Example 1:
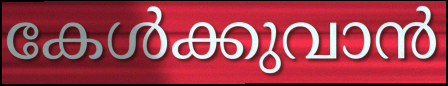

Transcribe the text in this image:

കേൾക്കുവാൻ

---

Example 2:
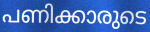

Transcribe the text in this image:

പണിക്കാരുടെ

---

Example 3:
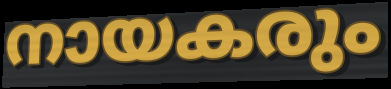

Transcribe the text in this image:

നായകരും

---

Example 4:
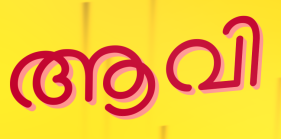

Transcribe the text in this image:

ആവി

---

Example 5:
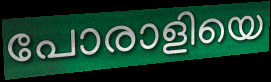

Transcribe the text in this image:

പോരാളിയെ